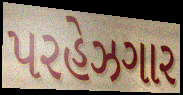
પરહેઝગાર